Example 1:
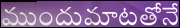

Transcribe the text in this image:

ముందుమాటతోనే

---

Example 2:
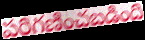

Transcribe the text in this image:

పరిగణించబడింది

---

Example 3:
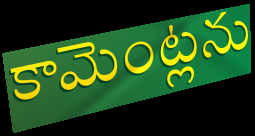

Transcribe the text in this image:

కామెంట్లను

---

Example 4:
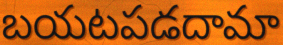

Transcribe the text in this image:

బయటపడదామా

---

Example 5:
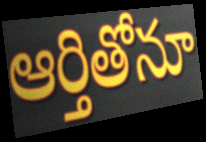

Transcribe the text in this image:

ఆర్తితోనూ